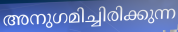
അനുഗമിച്ചിരിക്കുന്ന